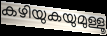
കഴിയുകയുമുള്ളൂ